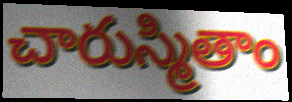
చారుస్మితాం